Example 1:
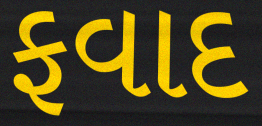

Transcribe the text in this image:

ફવાદ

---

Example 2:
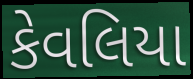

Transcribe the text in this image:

કેવલિયા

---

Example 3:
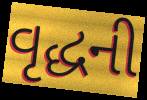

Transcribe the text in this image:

વૃદ્ધની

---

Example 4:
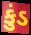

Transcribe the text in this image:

કુંડ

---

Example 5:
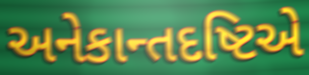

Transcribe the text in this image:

અનેકાન્તદષ્ટિએ